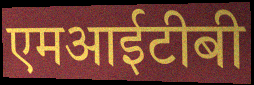
एमआईटीबी